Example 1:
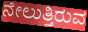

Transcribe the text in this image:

ನೇಲುತ್ತಿರುವ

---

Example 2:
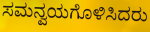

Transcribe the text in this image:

ಸಮನ್ವಯಗೊಳಿಸಿದರು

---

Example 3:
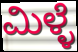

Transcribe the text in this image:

ಮಿಳ್ಳೆ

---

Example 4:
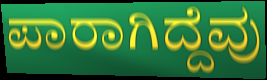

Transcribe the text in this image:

ಪಾರಾಗಿದ್ದೆವು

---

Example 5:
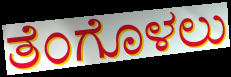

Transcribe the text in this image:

ತೆಂಗೊಳಲು